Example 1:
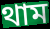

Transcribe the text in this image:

থাম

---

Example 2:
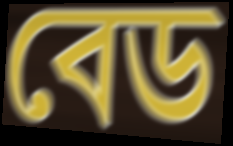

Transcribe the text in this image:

বেড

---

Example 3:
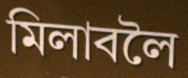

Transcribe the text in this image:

মিলাবলৈ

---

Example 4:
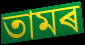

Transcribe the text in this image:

তামৰ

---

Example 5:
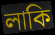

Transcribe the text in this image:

লাকি